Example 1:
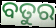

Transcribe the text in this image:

ବତୁର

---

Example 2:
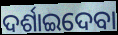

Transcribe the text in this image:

ଦର୍ଶାଇଦେବା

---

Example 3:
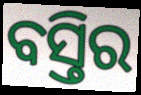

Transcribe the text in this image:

ବସ୍ତିର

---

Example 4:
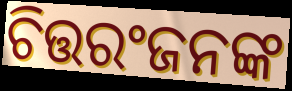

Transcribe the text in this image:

ଚିତ୍ତରଂଜନଙ୍କ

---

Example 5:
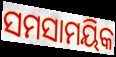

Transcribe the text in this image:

ସମସାମୟିକ